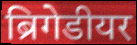
ब्रिगेडीयर